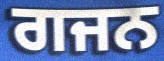
ਗਜਨ